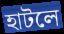
হাটলে